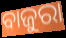
ବାଜୁରା